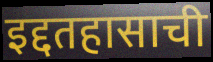
इद्दतहासाची